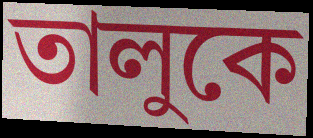
তালুকে